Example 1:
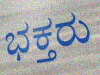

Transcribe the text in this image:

ಭಕ್ತರು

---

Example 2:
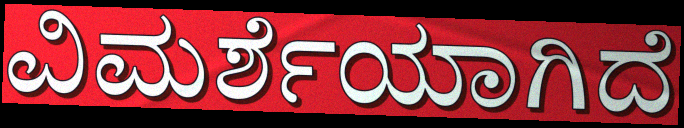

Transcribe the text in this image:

ವಿಮರ್ಶೆಯಾಗಿದೆ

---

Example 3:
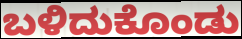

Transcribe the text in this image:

ಬಳಿದುಕೊಂಡು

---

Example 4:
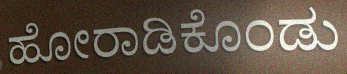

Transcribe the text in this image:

ಹೋರಾಡಿಕೊಂಡು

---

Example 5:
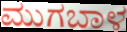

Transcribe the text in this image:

ಮುಗಬಾಳ